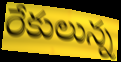
రేకులున్న